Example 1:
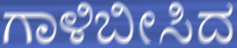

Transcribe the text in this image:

ಗಾಳಿಬೀಸಿದ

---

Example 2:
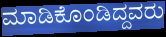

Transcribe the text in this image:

ಮಾಡಿಕೊಂಡಿದ್ದವರು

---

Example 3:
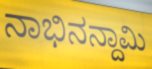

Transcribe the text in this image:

ನಾಭಿನನ್ದಾಮಿ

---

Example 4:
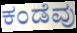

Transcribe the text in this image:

ಕಂಡೆವು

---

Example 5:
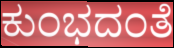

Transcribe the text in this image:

ಕುಂಭದಂತೆ